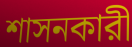
শাসনকারী